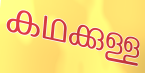
കഥക്കുള്ള